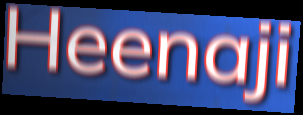
Heenaji